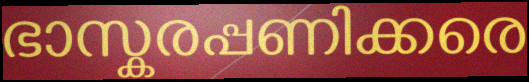
ഭാസ്കരപ്പണിക്കരെ